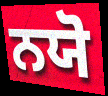
ਨਯੋ